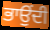
ਭਾਉਂਦੀ